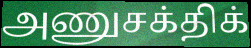
அணுசக்திக்